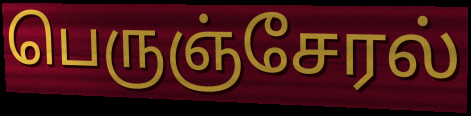
பெருஞ்சேரல்